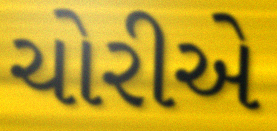
ચોરીએ